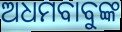
ଅଧମବାବୁଙ୍କ